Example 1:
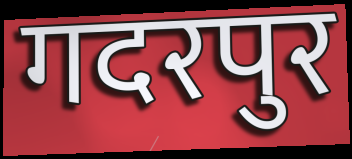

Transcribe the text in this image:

गदरपुर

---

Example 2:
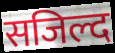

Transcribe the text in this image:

सजिल्द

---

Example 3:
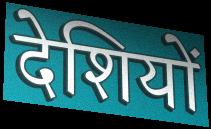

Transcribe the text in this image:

देशियों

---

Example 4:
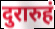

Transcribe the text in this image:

दुरारुहं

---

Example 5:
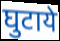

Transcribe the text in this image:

घुटाये